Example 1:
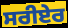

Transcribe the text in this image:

ਸਰੀਏਰ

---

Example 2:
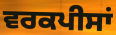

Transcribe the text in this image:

ਵਰਕਪੀਸਾਂ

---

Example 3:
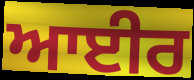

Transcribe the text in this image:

ਆਈਰ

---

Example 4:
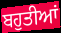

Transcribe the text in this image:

ਬਹੁਤੀਆਂ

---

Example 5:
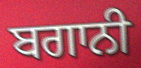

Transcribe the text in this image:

ਬਗਾਨੀ